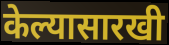
केल्यासारखी